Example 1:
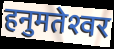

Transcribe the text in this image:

हनुमतेश्वर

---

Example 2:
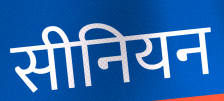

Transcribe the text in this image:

सीनियन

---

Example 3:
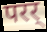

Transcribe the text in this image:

परर्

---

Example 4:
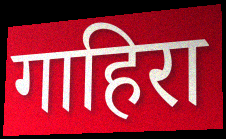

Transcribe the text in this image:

गाहिरा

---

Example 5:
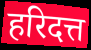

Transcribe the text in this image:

हरिदत्त